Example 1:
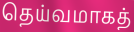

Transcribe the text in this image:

தெய்வமாகத்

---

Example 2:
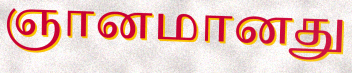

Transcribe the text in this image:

ஞானமானது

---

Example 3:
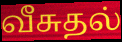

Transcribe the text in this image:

வீசுதல்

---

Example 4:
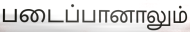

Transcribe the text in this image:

படைப்பானாலும்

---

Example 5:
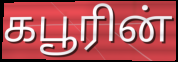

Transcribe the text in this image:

கபூரின்